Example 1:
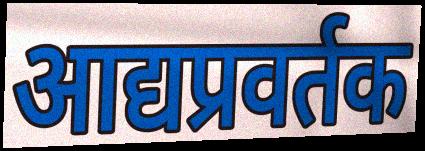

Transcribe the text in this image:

आद्यप्रवर्तक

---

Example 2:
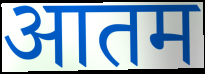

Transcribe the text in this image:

आतम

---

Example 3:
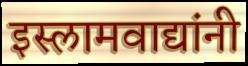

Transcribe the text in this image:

इस्लामवाद्यांनी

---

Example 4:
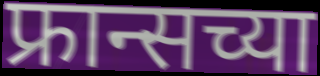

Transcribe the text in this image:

फ्रान्सच्या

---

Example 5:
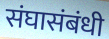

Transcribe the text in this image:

संघासंबंधी